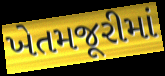
ખેતમજૂરીમાં